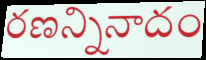
రణన్నినాదం